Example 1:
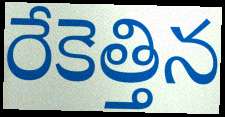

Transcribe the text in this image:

రేకెత్తిన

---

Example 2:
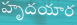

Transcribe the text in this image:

హృదయార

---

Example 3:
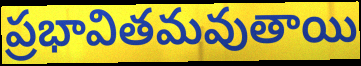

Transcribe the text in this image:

ప్రభావితమవుతాయి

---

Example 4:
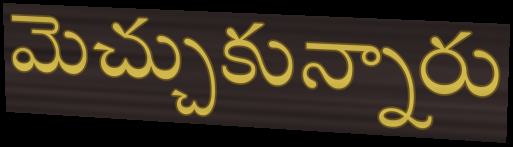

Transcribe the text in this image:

మెచ్చుకున్నారు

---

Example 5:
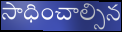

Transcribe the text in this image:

సాధించాల్సిన